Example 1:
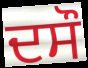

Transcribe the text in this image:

ਦਸੌ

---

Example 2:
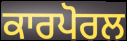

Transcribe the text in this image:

ਕਾਰਪੋਰਲ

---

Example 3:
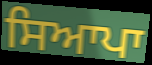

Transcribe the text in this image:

ਸਿਆਪਾ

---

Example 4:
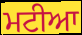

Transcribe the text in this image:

ਮਟੀਆ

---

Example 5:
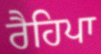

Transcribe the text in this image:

ਰੈਹਿਪਾ